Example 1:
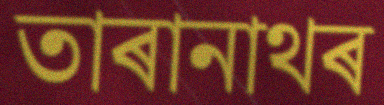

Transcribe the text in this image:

তাৰানাথৰ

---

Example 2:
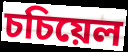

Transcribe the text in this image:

চচিয়েল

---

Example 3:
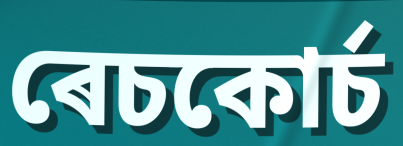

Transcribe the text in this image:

ৰেচকোৰ্চ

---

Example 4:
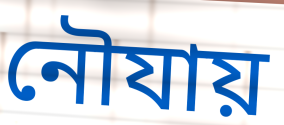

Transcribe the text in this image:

নৌযায়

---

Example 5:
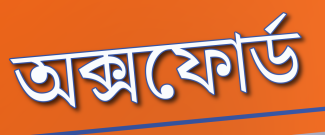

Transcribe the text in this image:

অক্সফোৰ্ড